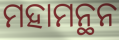
ମହାମନ୍ଥନ